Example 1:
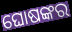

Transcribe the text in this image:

ଘୋଷଙ୍କର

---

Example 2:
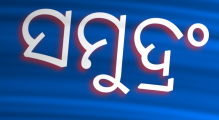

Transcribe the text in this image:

ସମୁଦ୍ରଂ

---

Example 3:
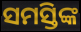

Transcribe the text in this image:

ସମସ୍ତିଙ୍କ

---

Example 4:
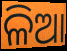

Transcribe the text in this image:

ଳିଆ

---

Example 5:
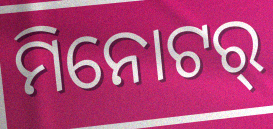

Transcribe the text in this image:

ମିନୋଟର୍